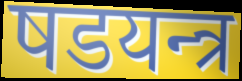
षडयन्त्र